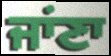
ਜਾਂਣਾ